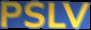
PSLV